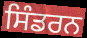
ਸਿੰਡਰਨ